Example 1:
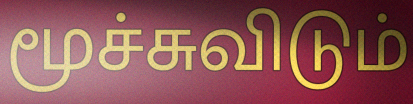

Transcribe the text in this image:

மூச்சுவிடும்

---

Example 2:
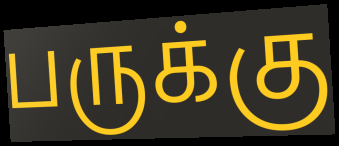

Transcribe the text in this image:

பருக்கு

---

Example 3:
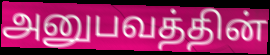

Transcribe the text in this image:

அனுபவத்தின்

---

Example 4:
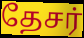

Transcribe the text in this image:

தேசர்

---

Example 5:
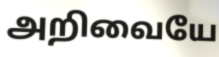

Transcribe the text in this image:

அறிவையே